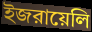
ইজরায়েলি